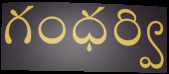
గంధర్వి